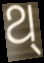
ଥ୍